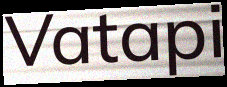
Vatapi